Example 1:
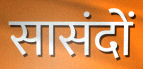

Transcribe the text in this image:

सासंदों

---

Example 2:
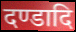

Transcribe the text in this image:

दण्डादि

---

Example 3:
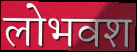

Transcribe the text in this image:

लोभवश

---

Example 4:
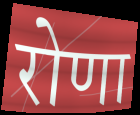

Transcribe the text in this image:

रोणा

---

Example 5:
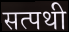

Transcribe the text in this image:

सत्पथी